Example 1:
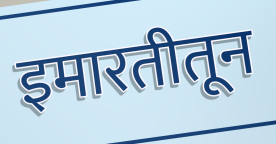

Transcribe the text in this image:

इमारतीतून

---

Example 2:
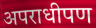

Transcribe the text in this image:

अपराधीपण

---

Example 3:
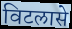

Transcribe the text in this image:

विटलासे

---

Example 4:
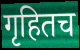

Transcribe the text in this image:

गृहितच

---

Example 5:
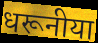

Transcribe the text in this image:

धरूनीया